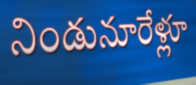
నిండునూరేళ్లూ